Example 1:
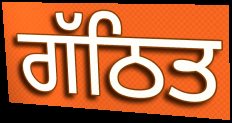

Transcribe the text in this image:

ਗੱਠਿਤ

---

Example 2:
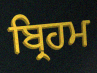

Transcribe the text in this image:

ਬ੍ਰਿਹਮ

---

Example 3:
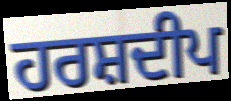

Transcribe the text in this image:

ਹਰਸ਼ਦੀਪ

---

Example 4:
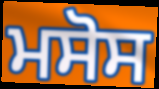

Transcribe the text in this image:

ਮਸੋਸ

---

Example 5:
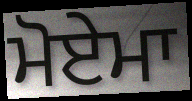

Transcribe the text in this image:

ਮੋਏਮਾ